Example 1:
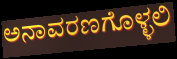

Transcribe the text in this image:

ಅನಾವರಣಗೊಳ್ಳಲಿ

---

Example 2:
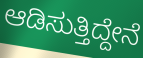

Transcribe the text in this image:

ಆಡಿಸುತ್ತಿದ್ದೇನೆ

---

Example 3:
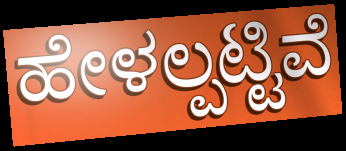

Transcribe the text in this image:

ಹೇಳಲ್ಪಟ್ಟಿವೆ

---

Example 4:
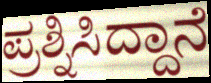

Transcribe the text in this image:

ಪ್ರಶ್ನಿಸಿದ್ದಾನೆ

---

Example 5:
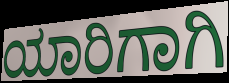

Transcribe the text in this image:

ಯಾರಿಗಾಗಿ